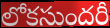
లోకసుందరీ